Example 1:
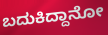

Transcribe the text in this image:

ಬದುಕಿದ್ದಾನೋ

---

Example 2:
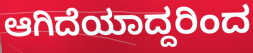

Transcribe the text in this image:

ಆಗಿದೆಯಾದ್ದರಿಂದ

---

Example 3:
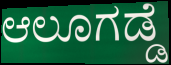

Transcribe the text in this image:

ಆಲೂಗಡ್ಡೆ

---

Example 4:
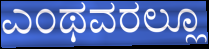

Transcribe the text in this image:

ಎಂಥವರಲ್ಲೂ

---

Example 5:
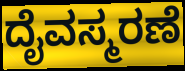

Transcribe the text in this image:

ದೈವಸ್ಮರಣೆ